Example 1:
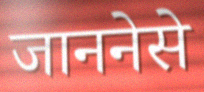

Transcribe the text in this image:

जाननेसे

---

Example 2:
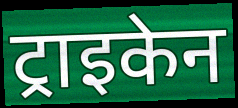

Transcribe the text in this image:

ट्राइकेन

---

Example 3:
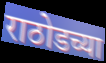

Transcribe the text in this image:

राठोडच्या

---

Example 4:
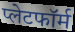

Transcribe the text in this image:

प्‍लेटफॉर्म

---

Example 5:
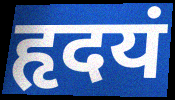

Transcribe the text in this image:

हृदयं